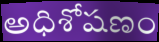
అధిశోషణం